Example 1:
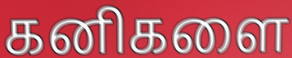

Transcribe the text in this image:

கனிகளை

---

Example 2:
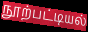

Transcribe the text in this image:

நூற்பட்டியல்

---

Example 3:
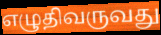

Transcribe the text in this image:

எழுதிவருவது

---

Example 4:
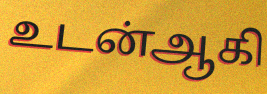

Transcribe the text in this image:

உடன்ஆகி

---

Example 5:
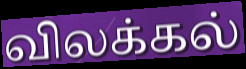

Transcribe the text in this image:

விலக்கல்